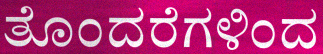
ತೊಂದರೆಗಳಿಂದ